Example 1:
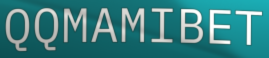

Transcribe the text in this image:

QQMAMIBET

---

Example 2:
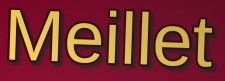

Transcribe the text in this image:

Meillet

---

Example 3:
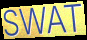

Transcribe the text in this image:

SWAT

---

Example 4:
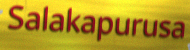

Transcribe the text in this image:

Salakapurusa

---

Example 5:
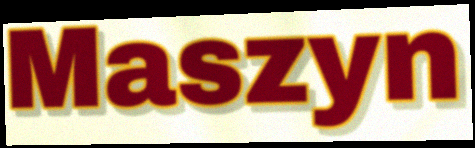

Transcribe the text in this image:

Maszyn